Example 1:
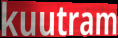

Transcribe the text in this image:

kuutram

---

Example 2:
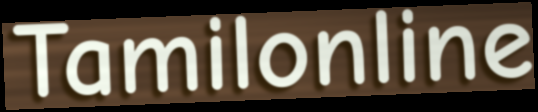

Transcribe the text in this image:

Tamilonline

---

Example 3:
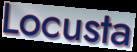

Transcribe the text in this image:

Locusta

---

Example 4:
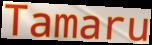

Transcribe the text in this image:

Tamaru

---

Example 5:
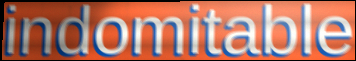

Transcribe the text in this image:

indomitable